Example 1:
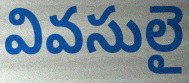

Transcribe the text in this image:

వివసులై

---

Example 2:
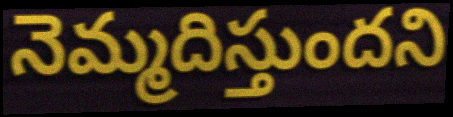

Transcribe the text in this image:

నెమ్మదిస్తుందని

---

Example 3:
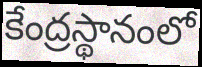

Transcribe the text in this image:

కేంద్రస్థానంలో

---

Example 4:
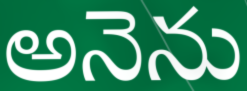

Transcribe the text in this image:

అనెను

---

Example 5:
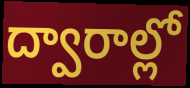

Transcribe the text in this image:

ద్వారాల్లో